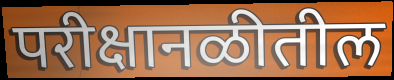
परीक्षानळीतील